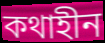
কথাহীন